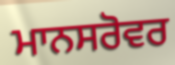
ਮਾਨਸਰੋਵਰ